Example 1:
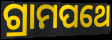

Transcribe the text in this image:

ଗ୍ରାମପଥେ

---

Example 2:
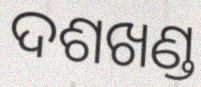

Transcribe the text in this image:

ଦଶଖଣ୍ଡ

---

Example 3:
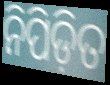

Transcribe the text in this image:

ନିପିଡ଼ିତ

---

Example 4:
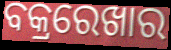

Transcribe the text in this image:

ବକ୍ରରେଖାର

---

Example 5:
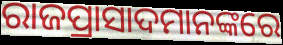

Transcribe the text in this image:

ରାଜପ୍ରାସାଦମାନଙ୍କରେ